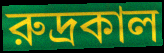
রুদ্রকাল